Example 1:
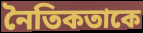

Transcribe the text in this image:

নৈতিকতাকে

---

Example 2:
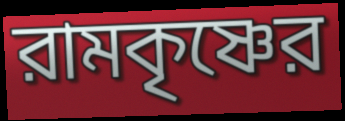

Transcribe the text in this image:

রামকৃষ্ণের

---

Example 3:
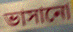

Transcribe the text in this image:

ভাসানো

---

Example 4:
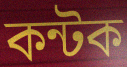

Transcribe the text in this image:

কন্টক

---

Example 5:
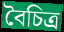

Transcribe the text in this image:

বৈচিত্র